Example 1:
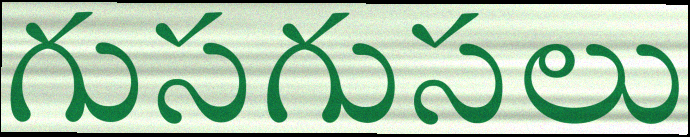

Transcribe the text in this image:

గుసగుసలు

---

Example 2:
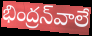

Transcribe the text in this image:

భింద్రన్‌వాలే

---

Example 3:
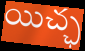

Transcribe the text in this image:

యిచ్ఛ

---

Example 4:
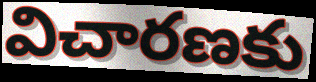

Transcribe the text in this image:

విచారణకు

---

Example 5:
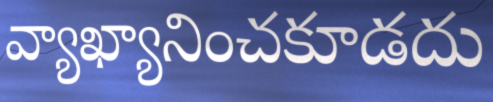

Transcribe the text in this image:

వ్యాఖ్యానించకూడదు